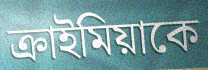
ক্রাইমিয়াকে